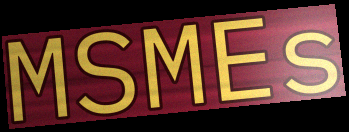
MSMEs